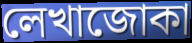
লেখাজোকা